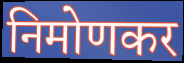
निमोणकर